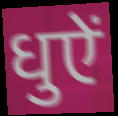
धुऐं